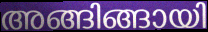
അങ്ങിങ്ങായി